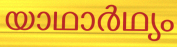
യാഥാർഥ്യം